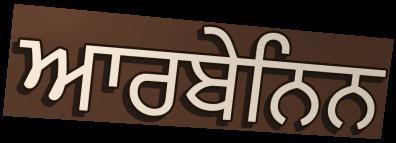
ਆਰਬੇਨਿਨ